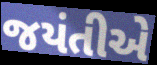
જયંતીએ